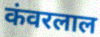
कंवरलाल